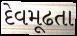
દેવમૂઢતા